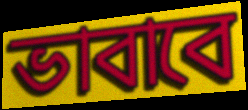
ভাবাবে